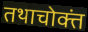
तथाचोक्तं